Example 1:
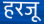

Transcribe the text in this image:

हरजू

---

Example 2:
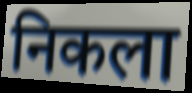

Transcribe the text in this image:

निकला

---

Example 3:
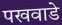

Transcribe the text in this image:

पखवाडे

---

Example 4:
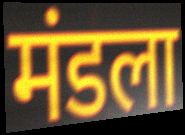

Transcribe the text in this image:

मंडला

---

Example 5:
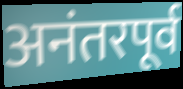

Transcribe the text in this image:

अनंतरपूर्व